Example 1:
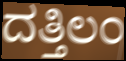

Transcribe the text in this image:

ದತ್ತಿಲಂ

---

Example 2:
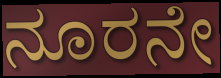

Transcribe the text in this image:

ನೂರನೇ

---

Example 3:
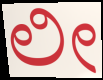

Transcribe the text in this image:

ಲೀ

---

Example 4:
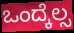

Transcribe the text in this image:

ಒಂದ್ಕೆಲ್ಸ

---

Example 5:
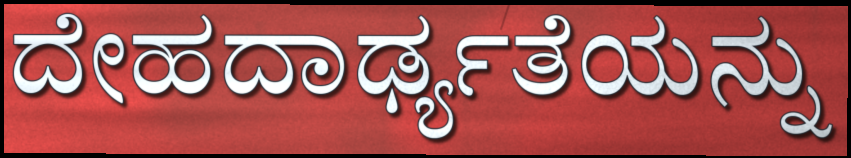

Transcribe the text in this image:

ದೇಹದಾರ್ಢ್ಯತೆಯನ್ನು